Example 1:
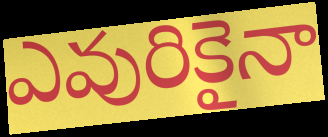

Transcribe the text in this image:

ఎవురికైనా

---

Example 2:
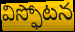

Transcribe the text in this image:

విస్ఫోటన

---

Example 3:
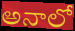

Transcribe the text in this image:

అనాలో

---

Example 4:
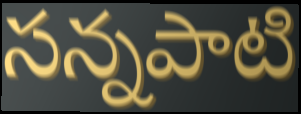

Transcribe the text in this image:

సన్నపాటి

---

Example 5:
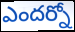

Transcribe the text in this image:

ఎందర్నో